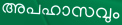
അപഹാസവും